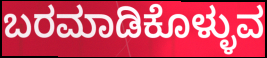
ಬರಮಾಡಿಕೊಳ್ಳುವ